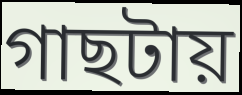
গাছটায়